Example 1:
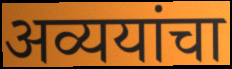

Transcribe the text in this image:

अव्ययांचा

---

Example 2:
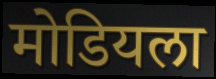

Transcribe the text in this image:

मोडियला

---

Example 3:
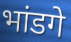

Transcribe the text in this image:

भांडगे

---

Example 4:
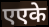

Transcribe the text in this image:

एएके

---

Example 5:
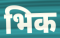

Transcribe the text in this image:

भिक